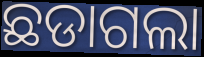
ଛଡାଗଲା